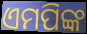
ଏମପିଙ୍କ